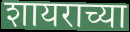
शायराच्या